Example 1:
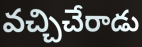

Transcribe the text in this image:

వచ్చిచేరాడు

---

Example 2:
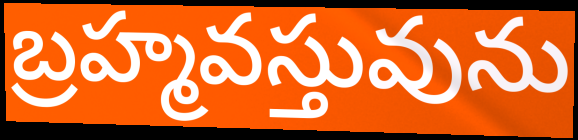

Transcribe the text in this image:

బ్రహ్మవస్తువును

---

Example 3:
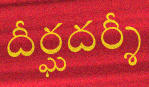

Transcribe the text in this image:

దీర్ఘదర్శీ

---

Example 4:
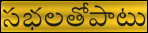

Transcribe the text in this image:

సభలతోపాటు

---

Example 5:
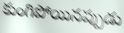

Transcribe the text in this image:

కుంగిపోయినప్పుడు